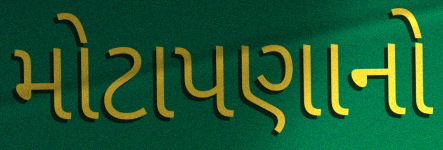
મોટાપણાનો